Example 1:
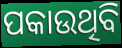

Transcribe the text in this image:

ପକାଉଥିବି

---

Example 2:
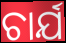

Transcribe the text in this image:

ଚାର୍ଯ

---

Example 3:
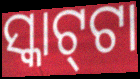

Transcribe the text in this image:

ସ୍କାଟ୍‌ଟା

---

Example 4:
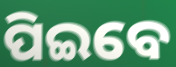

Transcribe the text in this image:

ପିଇବେ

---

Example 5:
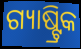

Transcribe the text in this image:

ଗ୍ୟାଷ୍ଟ୍ରିକ